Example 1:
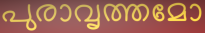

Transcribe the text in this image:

പുരാവൃത്തമോ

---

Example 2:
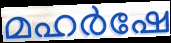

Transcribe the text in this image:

മഹർഷേ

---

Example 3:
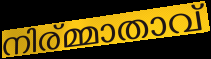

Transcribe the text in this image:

നിര്മ്മാതാവ്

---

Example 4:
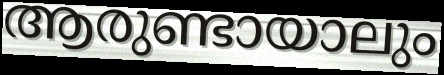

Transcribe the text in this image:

ആരുണ്ടായാലും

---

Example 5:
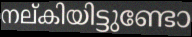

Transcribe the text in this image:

നല്കിയിട്ടുണ്ടോ